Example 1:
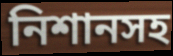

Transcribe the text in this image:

নিশানসহ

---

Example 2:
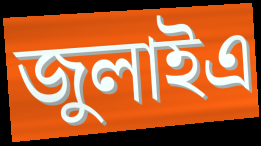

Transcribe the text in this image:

জুলাইএ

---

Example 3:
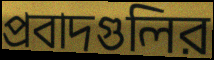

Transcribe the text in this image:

প্রবাদগুলির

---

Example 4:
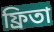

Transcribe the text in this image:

ফ্রিতা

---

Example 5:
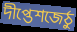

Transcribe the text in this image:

দীপ্তেশজেঠু